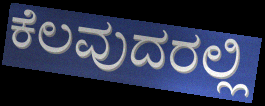
ಕೆಲವುದರಲ್ಲಿ